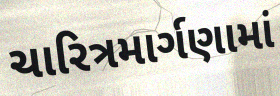
ચારિત્રમાર્ગણામાં